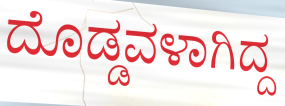
ದೊಡ್ಡವಳಾಗಿದ್ದ